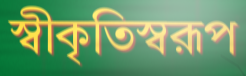
স্বীকৃতিস্বরূপ